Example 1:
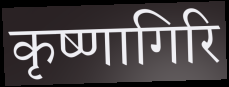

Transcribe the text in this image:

कृष्णागिरि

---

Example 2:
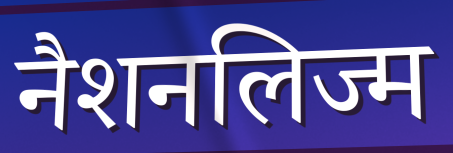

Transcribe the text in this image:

नैशनलिज्म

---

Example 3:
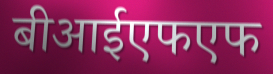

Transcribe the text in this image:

बीआईएफएफ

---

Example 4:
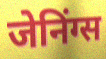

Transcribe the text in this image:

जेनिंग्स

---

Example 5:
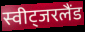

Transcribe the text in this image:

स्वीट्जरलैंड